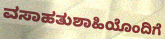
ವಸಾಹತುಶಾಹಿಯೊಂದಿಗೆ